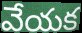
వేయక